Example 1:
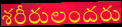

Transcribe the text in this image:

శరీరులందరు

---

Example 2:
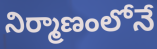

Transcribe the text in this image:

నిర్మాణంలోనే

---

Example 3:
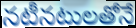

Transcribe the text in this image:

నటీనటులతోనే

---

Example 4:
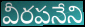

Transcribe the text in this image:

వీరపనేని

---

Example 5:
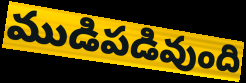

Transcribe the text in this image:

ముడిపడివుంది